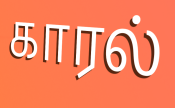
காரல்